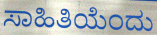
ಸಾಹಿತಿಯೆಂದು